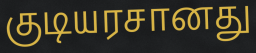
குடியரசானது